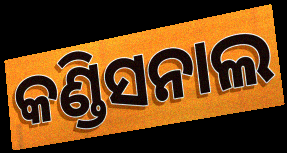
କଣ୍ଡିସନାଲ